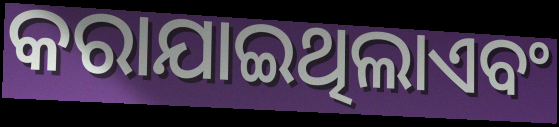
କରାଯାଇଥିଲାଏବଂ